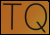
TQ